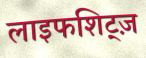
लाइफशिट्ज़